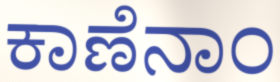
ಕಾಣೆನಾಂ